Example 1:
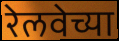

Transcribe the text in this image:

रेलवेच्या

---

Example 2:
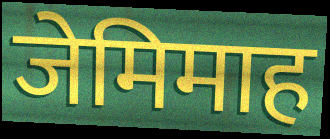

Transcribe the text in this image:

जेमिमाह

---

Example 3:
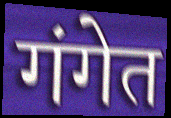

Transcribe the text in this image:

गंगेत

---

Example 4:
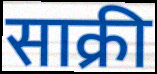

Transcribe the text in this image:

साक्री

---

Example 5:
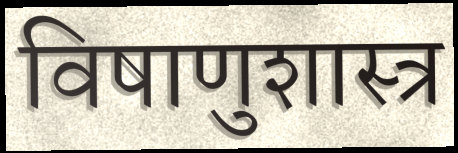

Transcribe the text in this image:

विषाणुशास्त्र